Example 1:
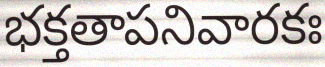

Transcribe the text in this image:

భక్తతాపనివారకః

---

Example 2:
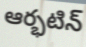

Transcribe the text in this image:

ఆర్భటిన్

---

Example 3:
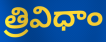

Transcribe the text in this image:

త్రివిధాం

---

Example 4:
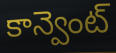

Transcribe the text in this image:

కాన్వెంట్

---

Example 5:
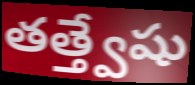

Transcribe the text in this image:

తత్త్వేషు